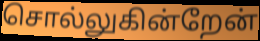
சொல்லுகின்றேன்